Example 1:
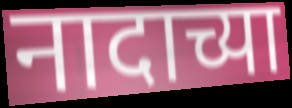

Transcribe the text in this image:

नादाच्या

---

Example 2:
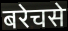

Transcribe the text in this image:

बरेचसे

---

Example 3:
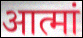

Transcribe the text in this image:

आत्मां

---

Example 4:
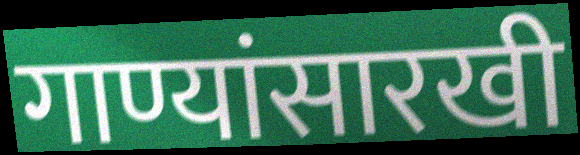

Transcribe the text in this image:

गाण्यांसारखी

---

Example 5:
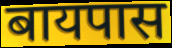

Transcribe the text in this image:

बायपास